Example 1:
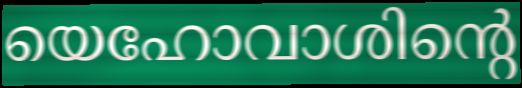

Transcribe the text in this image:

യെഹോവാശിന്റെ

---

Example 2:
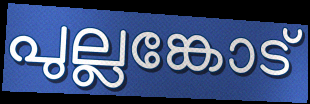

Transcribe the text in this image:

പുല്ലങ്കോട്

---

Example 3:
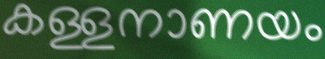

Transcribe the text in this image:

കള്ളനാണയം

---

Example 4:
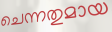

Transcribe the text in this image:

ചെന്നതുമായ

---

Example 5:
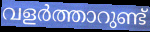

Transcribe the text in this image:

വളർത്താറുണ്ട്